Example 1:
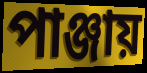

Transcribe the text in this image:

পাঞ্জায়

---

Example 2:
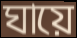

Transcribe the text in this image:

ঘায়ে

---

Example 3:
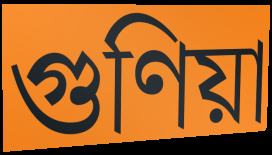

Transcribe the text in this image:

গুণিয়া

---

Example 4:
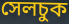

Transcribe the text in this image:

সেলচুক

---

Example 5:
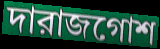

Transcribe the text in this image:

দারাজগোশ